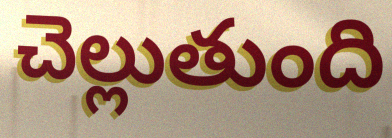
చెల్లుతుంది